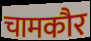
चामकौर